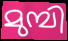
മുമ്പി